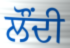
ਲੌਂਦੀ